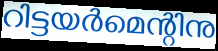
റിട്ടയർമെന്റിനു